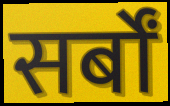
सर्बों